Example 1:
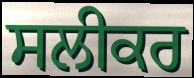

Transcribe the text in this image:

ਸਲੀਕਰ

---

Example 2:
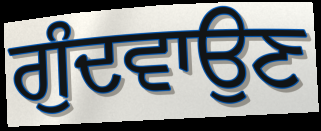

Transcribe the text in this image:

ਗੁੰਦਵਾਉਣ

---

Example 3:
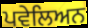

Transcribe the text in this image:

ਪਵੇਲਿਅਨ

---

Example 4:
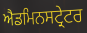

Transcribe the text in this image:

ਐਡਮਿਨਸਟ੍ਰੇਟਰ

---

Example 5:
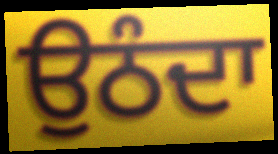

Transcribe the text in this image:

ਉਠੰਦਾ